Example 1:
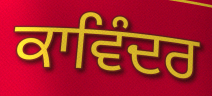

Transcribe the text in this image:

ਕਾਵਿੰਦਰ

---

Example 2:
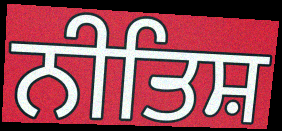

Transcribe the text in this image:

ਨੀਤਿਸ਼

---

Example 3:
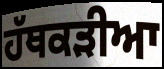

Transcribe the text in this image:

ਹੱਥਕੜੀਆ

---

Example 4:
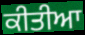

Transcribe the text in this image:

ਕੀਤੀਆ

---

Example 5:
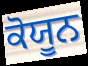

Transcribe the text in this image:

ਕੋਯੂਨ